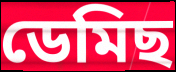
ডেমিছ